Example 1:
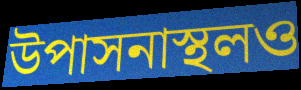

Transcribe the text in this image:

উপাসনাস্থলও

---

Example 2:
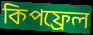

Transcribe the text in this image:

কিপফ্রেল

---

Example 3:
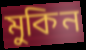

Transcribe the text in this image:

মুকিন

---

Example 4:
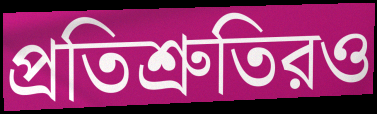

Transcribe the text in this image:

প্রতিশ্রুতিরও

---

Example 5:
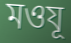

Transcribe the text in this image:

মওযূ